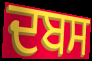
ਦਬਸ